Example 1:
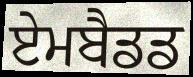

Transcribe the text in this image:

ਏਮਬੈਡਡ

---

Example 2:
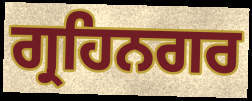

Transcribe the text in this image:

ਗ੍ਰਹਿਨਗਰ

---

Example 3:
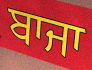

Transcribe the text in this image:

ਬਾਜਾ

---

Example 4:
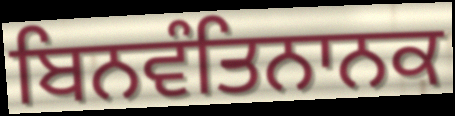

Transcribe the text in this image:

ਬਿਨਵੰਤਿਨਾਨਕ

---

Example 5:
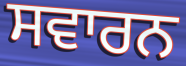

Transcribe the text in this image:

ਸਵਾਰਨ